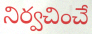
నిర్వచించే